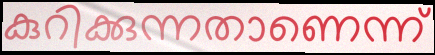
കുറിക്കുന്നതാണെന്ന്